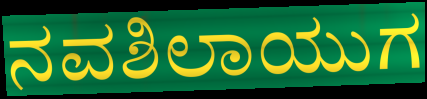
ನವಶಿಲಾಯುಗ